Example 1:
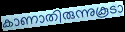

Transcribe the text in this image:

കാണാതിരുന്നുകൂടാ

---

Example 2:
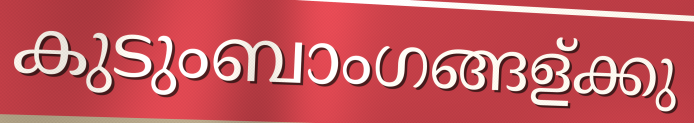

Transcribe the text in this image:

കുടുംബാംഗങ്ങള്ക്കു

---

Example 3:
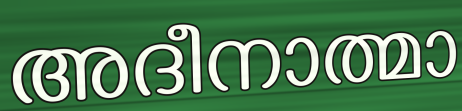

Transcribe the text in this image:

അദീനാത്മാ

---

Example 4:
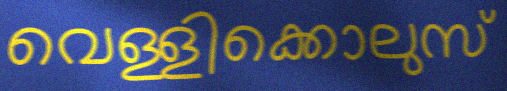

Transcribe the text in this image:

വെള്ളിക്കൊലുസ്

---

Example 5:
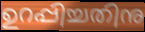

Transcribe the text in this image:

ഉറപ്പിച്ചതിനു